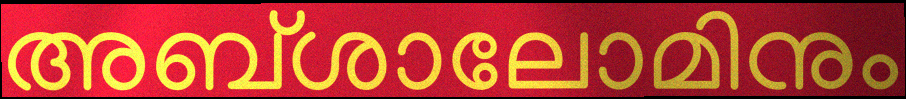
അബ്ശാലോമിനും